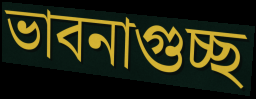
ভাবনাগুচ্ছ